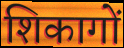
शिकागों